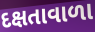
દક્ષતાવાળા